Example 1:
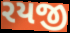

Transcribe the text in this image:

રયજી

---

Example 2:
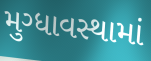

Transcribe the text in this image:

મુગ્ધાવસ્થામાં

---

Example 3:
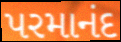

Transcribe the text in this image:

પરમાનંદ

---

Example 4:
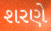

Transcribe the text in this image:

શરણે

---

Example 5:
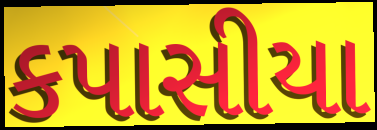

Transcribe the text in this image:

કપાસીયા